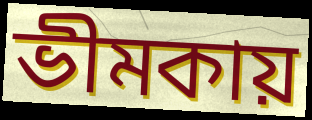
ভীমকায়